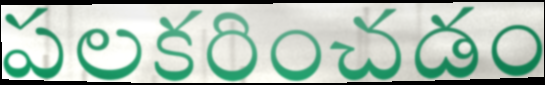
పలకరించడం